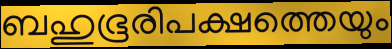
ബഹുഭൂരിപക്ഷത്തെയും